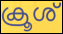
ക്രൂശ്